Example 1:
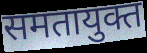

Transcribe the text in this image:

समतायुक्त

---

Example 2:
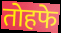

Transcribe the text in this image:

तोहफे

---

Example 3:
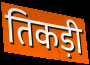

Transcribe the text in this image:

तिकड़ी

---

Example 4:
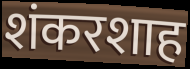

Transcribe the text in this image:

शंकरशाह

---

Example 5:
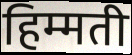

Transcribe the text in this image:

हिम्मती